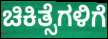
ಚಿಕಿತ್ಸೆಗಳಿಗೆ